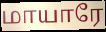
மாயாரே